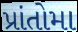
પ્રાંતોમા